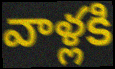
వాళ్లకి